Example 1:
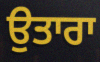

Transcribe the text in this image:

ਉਤਾਰਾ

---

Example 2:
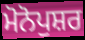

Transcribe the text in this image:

ਮੋਨੋਪੁਸ਼ਰ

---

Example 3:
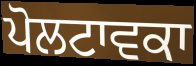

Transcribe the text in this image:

ਪੋਲਟਾਵਕਾ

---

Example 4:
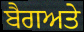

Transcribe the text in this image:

ਬੈਗਅਤੇ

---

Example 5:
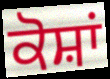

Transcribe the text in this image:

ਕੋਸ਼ਾਂ